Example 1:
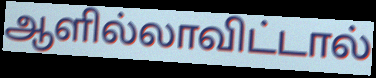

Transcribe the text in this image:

ஆளில்லாவிட்டால்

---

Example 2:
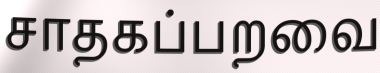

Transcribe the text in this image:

சாதகப்பறவை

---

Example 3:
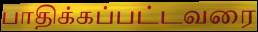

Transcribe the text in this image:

பாதிக்கப்பட்டவரை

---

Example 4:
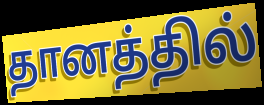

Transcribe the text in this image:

தானத்தில்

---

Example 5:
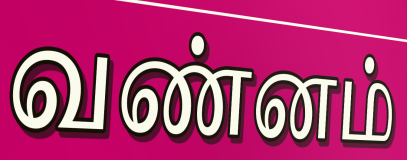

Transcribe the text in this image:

வண்னம்